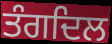
ਤੰਗਦਿਲ